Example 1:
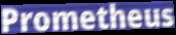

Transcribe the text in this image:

Prometheus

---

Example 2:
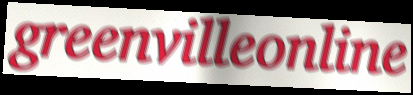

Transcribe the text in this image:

greenvilleonline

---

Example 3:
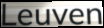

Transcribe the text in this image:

Leuven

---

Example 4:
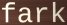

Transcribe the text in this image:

fark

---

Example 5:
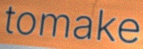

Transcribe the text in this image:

tomake